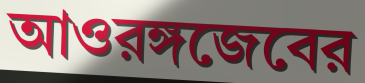
আওরঙ্গজেবের